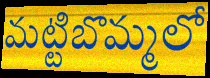
మట్టిబొమ్మలో